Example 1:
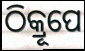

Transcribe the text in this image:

ଠିକ୍ରୂପେ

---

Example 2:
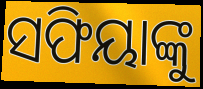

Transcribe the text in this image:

ସଫିୟାଙ୍କୁ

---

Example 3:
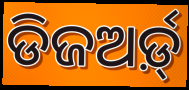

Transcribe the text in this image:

ଡିଜଅର୍ଡ଼୍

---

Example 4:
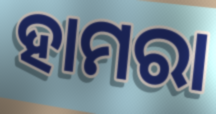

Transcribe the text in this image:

ହାମରା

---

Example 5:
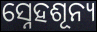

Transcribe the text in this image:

ସ୍ନେହଶୂନ୍ୟ